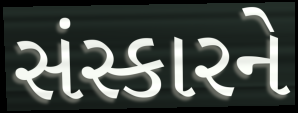
સંસ્કારને